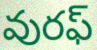
వురఫ్